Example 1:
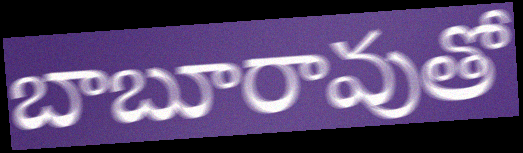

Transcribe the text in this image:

బాబూరావుతో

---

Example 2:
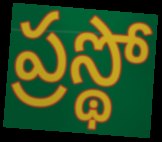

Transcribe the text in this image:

ప్రస్థో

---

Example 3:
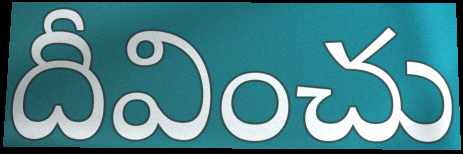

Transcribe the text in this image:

దీవించు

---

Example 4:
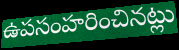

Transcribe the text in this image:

ఉపసంహరించినట్లు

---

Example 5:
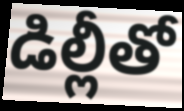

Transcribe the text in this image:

డిల్లీతో